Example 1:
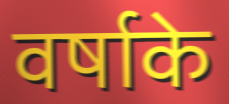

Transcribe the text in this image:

वर्षाके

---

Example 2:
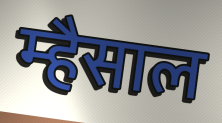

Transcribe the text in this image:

म्हैसाल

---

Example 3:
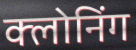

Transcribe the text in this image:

क्‍लोनिंग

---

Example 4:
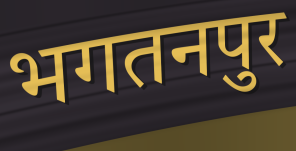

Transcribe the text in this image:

भगतनपुर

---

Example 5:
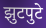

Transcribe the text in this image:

झुटपुटे